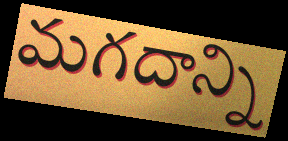
మగదాన్ని